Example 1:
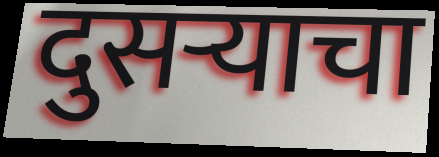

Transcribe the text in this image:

दुसऱ्याचा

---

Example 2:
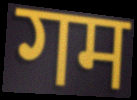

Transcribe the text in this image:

गम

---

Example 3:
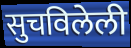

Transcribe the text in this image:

सुचविलेली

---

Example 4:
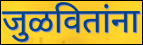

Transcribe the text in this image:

जुळवितांना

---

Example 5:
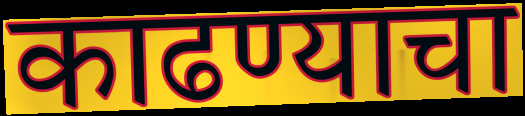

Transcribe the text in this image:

काढण्याचा